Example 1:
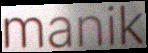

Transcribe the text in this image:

manik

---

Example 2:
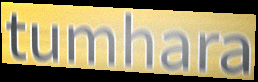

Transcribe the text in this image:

tumhara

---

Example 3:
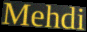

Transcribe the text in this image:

Mehdi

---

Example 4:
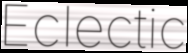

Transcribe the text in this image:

Eclectic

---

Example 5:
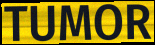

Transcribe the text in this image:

TUMOR